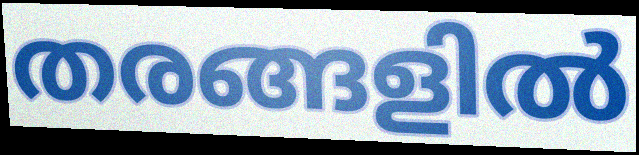
തരങ്ങളിൽ